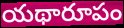
యథారూపం